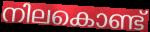
നിലകൊണ്ട്